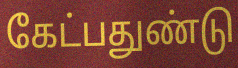
கேட்பதுண்டு